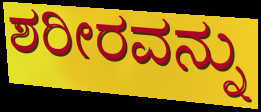
ಶರೀರವನ್ನು